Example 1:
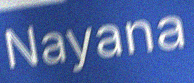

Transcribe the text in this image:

Nayana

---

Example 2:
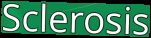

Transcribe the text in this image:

Sclerosis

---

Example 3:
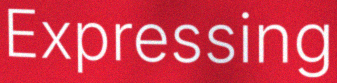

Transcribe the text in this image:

Expressing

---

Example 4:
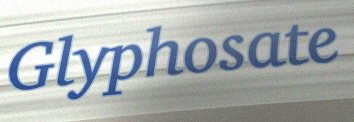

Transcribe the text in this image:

Glyphosate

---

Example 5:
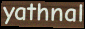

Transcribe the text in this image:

yathnal